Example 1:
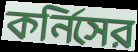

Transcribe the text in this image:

কর্নিসের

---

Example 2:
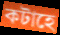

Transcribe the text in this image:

কটাহে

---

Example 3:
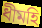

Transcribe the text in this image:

ধীমহি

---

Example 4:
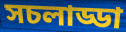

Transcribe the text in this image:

সচলাড্ডা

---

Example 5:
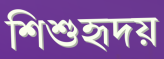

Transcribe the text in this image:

শিশুহৃদয়